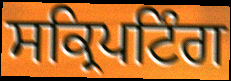
ਸਕ੍ਰਿਪਟਿੰਗ